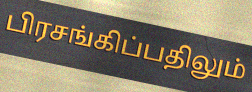
பிரசங்கிப்பதிலும்